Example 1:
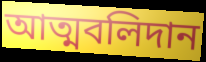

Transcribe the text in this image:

আত্মবলিদান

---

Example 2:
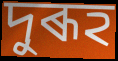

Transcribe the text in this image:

দুৰূহ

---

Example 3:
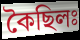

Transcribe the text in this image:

কৈছিলঃ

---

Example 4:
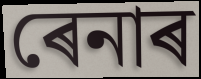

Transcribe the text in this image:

ৰেনাৰ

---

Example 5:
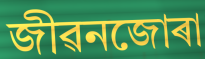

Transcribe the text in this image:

জীৱনজোৰা